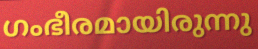
ഗംഭീരമായിരുന്നു